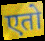
एतो